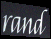
rand